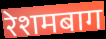
रेशमबाग